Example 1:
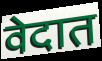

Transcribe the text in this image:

वेदात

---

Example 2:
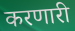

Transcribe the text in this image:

करणारी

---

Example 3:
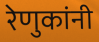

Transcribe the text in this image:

रेणुकांनी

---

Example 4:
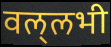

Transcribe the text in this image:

वल्लभी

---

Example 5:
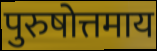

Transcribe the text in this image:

पुरुषोत्तमाय